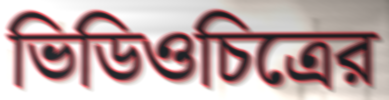
ভিডিওচিত্রের